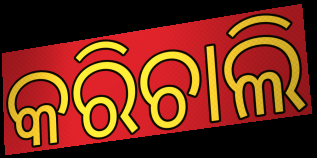
କରିଚାଲି